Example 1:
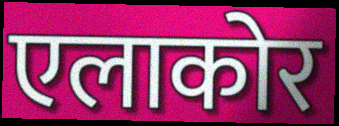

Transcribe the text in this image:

एलाकोर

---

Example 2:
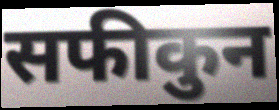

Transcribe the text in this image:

सफीकुन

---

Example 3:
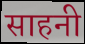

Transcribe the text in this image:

साहनी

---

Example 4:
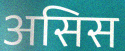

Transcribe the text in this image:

असिस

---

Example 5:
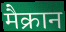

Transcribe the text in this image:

मैक्रान